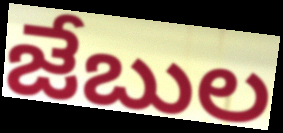
జేబుల